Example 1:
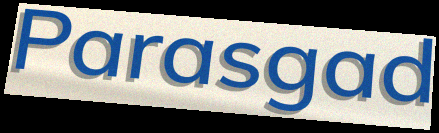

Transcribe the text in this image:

Parasgad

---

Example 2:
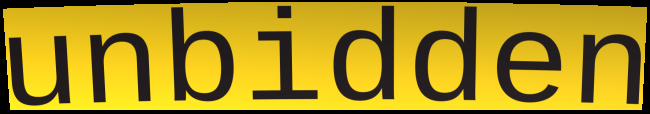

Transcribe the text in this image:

unbidden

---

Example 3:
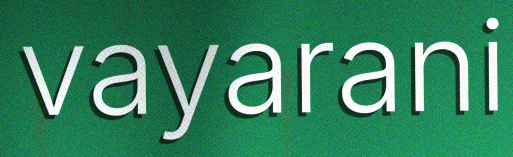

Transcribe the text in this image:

vayarani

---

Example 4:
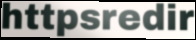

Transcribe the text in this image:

httpsredir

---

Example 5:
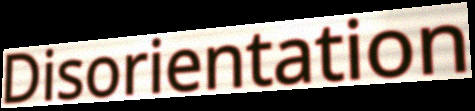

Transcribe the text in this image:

Disorientation